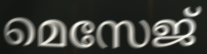
മെസേജ്